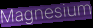
Magnesium